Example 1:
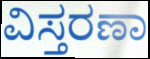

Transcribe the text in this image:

ವಿಸ್ತರಣಾ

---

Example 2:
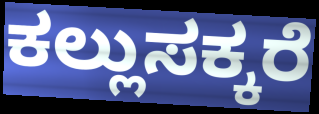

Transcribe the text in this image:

ಕಲ್ಲುಸಕ್ಕರೆ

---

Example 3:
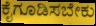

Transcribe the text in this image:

ಕೈಗೂಡಿಸಬೇಕು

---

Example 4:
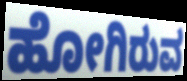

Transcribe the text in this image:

ಹೋಗಿರುವ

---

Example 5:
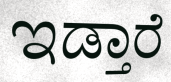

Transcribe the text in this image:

ಇಡ್ತಾರೆ